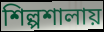
শিল্পশালায়